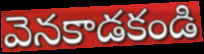
వెనకాడకండి